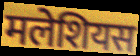
मलेशियस